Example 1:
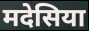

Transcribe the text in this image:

मदेसिया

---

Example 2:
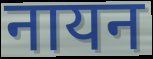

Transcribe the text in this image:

नायन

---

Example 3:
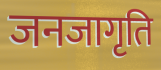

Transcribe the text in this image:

जनजागृति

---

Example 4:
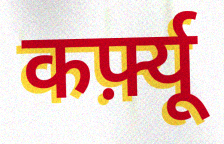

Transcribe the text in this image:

कर्फ़्यू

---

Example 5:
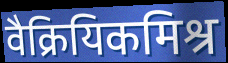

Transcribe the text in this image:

वैक्रियिकमिश्र